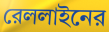
রেললাইনের